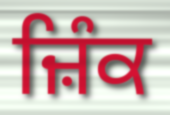
ਜ਼ਿੰਕ